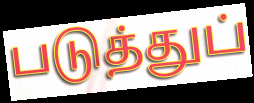
படுத்துப்